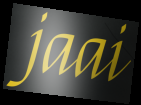
jaai